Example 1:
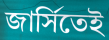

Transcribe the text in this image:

জার্সিতেই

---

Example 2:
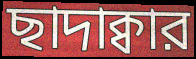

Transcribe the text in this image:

ছাদাক্বার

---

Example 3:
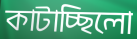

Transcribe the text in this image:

কাটাচ্ছিলো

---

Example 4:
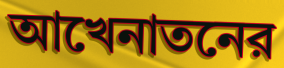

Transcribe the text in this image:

আখেনাতনের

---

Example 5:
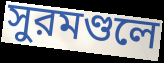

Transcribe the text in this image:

সুরমণ্ডলে